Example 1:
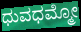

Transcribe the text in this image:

ಧುವಧಮ್ಮೋ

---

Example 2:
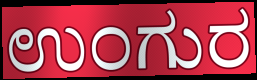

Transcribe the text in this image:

ಉಂಗುರ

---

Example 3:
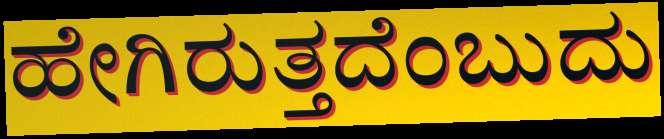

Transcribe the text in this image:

ಹೇಗಿರುತ್ತದೆಂಬುದು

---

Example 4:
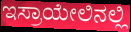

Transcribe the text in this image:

ಇಸ್ರಾಯೇಲಿನಲ್ಲಿ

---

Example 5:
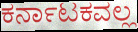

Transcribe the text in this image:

ಕರ್ನಾಟಕವಲ್ಲ